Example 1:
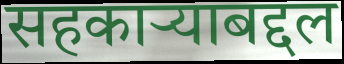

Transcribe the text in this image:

सहकाऱ्याबद्दल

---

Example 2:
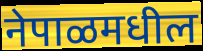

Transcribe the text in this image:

नेपाळमधील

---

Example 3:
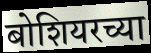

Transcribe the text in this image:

बोशियरच्या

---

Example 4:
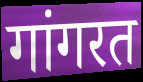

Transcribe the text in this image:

गांगरत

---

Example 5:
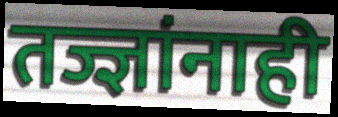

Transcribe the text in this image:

तज्ज्ञांनाही